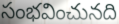
సంభవించునది